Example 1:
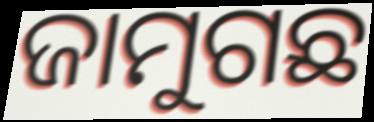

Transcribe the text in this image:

ଜାମୁଗଛ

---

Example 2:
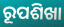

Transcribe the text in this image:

ରୂପଶିଖା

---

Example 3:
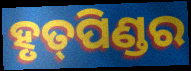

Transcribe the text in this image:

ହୃତ୍‍ପିଣ୍ଡର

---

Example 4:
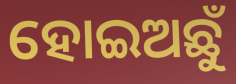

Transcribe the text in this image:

ହୋଇଅଛୁଁ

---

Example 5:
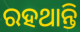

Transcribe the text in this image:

ରହଥାନ୍ତି